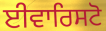
ਈਵਾਰਿਸਟੋ